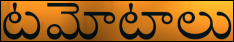
టమోటాలు